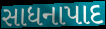
સાધનાપાદ